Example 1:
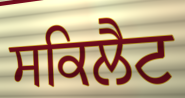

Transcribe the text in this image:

ਸਕਿਲੈਟ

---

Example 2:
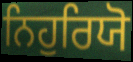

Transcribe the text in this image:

ਨਿਹੁਰਿਯੋ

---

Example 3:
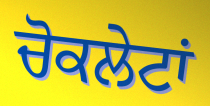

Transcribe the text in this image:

ਚੋਕਲੇਟਾਂ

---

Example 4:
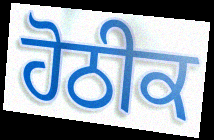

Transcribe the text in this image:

ਹੋਠੀਕ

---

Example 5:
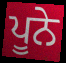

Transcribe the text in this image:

ਪੂਨੇ